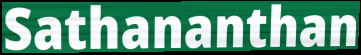
Sathananthan